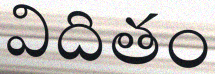
విదితం